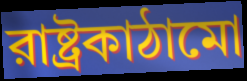
রাষ্ট্রকাঠামো